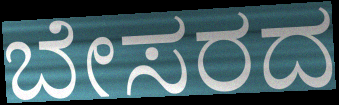
ಬೇಸರದ